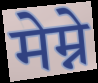
मेम्ने